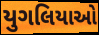
યુગલિયાઓ